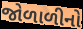
જોળાળીનો